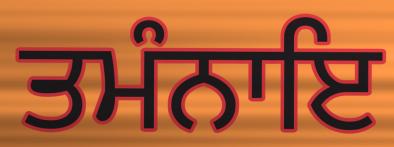
ਤਮੰਨਾਇ